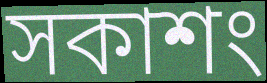
সকাশং